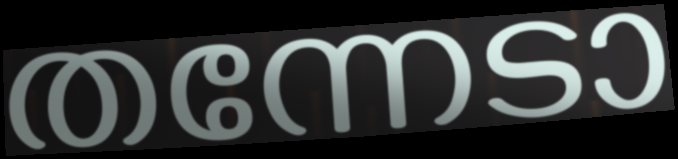
തന്നേടാ